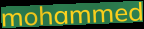
mohammed